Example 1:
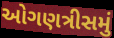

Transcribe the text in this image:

ઓગણત્રીસમું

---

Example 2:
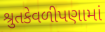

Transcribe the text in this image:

શ્રુતકેવળીપણામાં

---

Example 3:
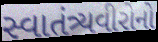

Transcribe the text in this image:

સ્વાતંત્ર્યવીરોનો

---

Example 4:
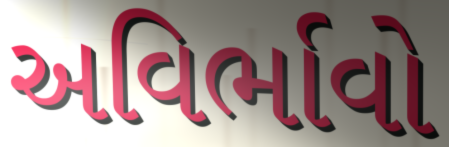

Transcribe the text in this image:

અવિર્ભાવો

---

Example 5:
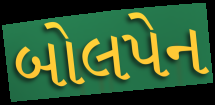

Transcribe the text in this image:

બોલપેન